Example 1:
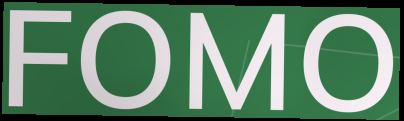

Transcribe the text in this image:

FOMO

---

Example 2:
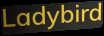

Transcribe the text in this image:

Ladybird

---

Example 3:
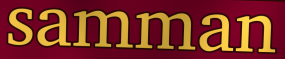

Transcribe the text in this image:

samman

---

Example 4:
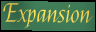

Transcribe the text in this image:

Expansion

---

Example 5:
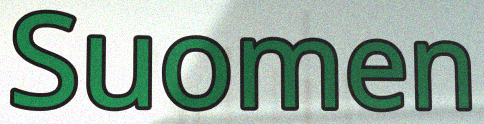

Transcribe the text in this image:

Suomen